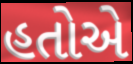
હતોએ